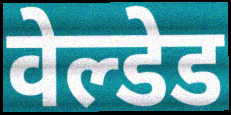
वेल्डेड